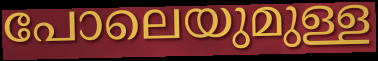
പോലെയുമുള്ള